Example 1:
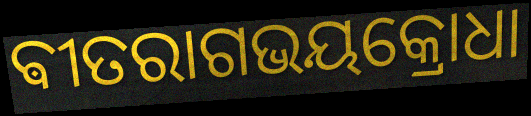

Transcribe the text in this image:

ଵୀତରାଗଭୟକ୍ରୋଧା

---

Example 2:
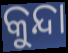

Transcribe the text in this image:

କୁନ୍ଦା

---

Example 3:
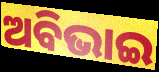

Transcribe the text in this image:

ଅବିଭାଇ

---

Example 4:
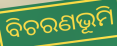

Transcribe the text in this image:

ବିଚରଣଭୂମି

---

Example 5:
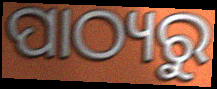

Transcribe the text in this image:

ପାଠ୍ୟରୁ